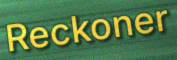
Reckoner